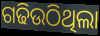
ଗଢିଉଠିଥିଲା